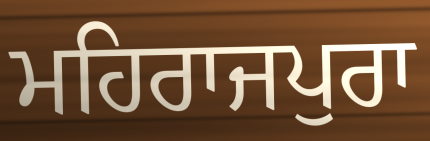
ਮਹਿਰਾਜਪੁਰਾ